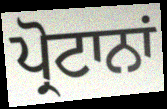
ਪ੍ਰੋਟਾਨਾਂ